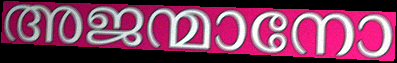
അജന്മാനോ